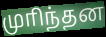
முரிந்தன